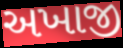
અખાજી